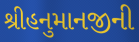
શ્રીહનુમાનજીની